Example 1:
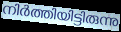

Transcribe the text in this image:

നിർത്തിയിട്ടിരുന്നു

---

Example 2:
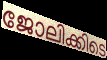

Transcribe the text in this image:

ജോലിക്കിടെ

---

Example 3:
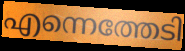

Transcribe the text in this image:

എന്നെത്തേടി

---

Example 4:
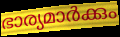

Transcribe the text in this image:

ഭാര്യമാർക്കും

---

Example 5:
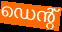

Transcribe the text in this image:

ഡെന്റ്